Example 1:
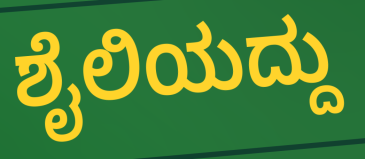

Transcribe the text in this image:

ಶೈಲಿಯದ್ದು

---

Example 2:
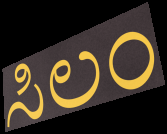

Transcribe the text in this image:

ಸಿಲಂ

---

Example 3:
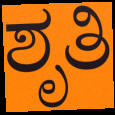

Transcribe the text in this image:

ಶೃತಿ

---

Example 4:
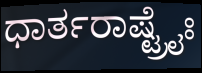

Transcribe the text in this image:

ಧಾರ್ತರಾಷ್ಟ್ರೈಃ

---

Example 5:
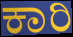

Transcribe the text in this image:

ಕಾರಿ